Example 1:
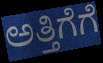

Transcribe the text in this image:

ಅತ್ತಿಗೆಗೆ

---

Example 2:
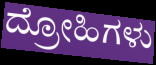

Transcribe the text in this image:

ದ್ರೋಹಿಗಳು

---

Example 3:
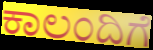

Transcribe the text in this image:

ಕಾಲಂದಿಗೆ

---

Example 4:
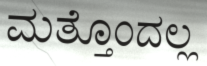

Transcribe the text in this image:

ಮತ್ತೊಂದಲ್ಲ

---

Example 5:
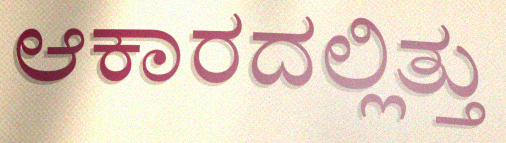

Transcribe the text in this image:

ಆಕಾರದಲ್ಲಿತ್ತು